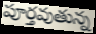
పూర్తవుతున్న